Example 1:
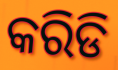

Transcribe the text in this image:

କରିଡି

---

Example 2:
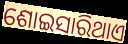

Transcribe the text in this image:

ଶୋଇସାରିଥାଏ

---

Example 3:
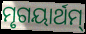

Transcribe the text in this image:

ମୃଗୟାର୍ଥମ୍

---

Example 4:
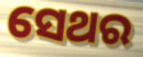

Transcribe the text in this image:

ସେଥର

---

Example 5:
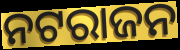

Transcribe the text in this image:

ନଟରାଜନ